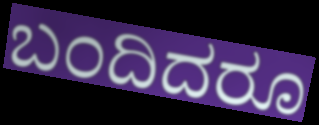
ಬಂದಿದರೂ